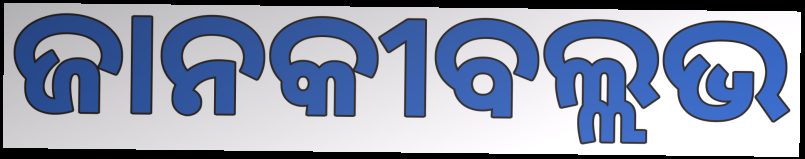
ଜାନକୀବଲ୍ଲଭ